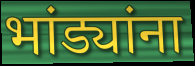
भांड्यांना